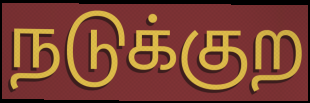
நடுக்குற